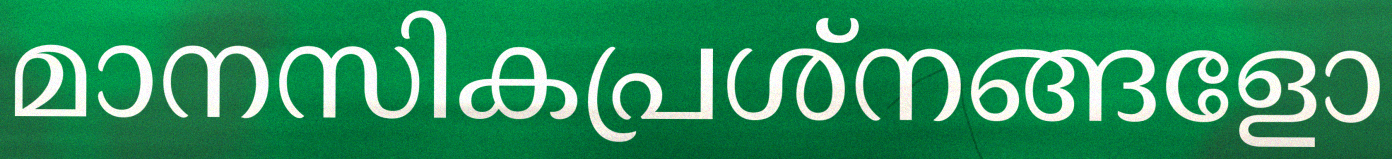
മാനസികപ്രശ്നങ്ങളോ